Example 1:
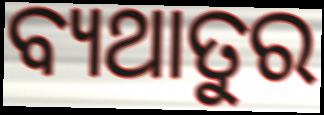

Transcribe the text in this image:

ବ୍ୟଥାତୁର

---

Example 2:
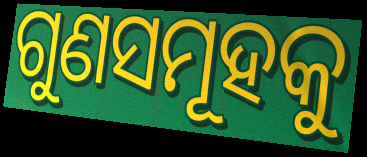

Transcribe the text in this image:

ଗୁଣସମୂହକୁ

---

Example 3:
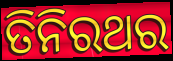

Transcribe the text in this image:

ତିନିରଥର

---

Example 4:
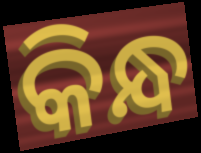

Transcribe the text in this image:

କିନ୍ଧ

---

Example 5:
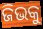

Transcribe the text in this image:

ଜିଭକୁ